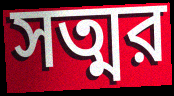
সত্মর